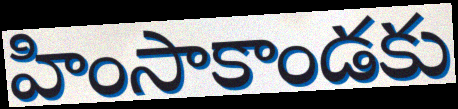
హింసాకాండకు